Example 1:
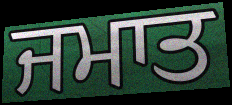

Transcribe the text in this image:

ਜਮਾਤ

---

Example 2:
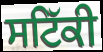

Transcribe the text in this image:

ਸਟਿੱਕੀ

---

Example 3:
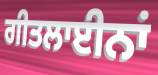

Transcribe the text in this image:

ਗੀਤਲਾਈਨਾਂ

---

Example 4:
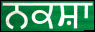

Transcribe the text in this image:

ਨਕਸ਼ਾ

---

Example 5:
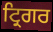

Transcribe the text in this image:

ਟ੍ਰਿਗਰ